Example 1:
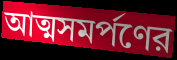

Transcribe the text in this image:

আত্মসমর্পণের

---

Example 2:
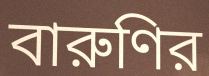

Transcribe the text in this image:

বারুণির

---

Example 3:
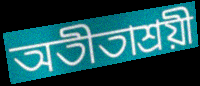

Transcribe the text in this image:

অতীতাশ্রয়ী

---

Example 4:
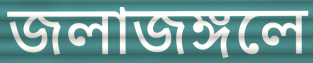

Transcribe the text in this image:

জলাজঙ্গলে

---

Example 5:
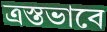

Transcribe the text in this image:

ত্রস্তভাবে